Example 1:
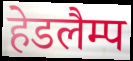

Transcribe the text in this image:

हेडलैम्प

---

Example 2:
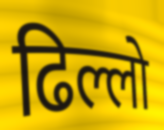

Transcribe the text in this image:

ढिल्लो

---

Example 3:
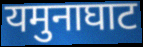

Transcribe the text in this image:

यमुनाघाट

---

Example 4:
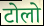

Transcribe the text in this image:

टोलो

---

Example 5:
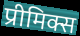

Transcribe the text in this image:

प्रीमिक्स